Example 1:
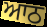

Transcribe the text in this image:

ਆਠ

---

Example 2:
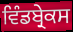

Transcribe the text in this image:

ਵਿੰਡਬ੍ਰੇਕਸ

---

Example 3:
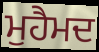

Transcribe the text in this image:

ਮੁਹੈਮਦ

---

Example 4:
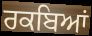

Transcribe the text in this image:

ਰਕਬਿਆਂ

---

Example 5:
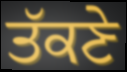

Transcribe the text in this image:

ਤੱਕਣੇ